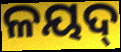
ଳୟଦ୍